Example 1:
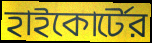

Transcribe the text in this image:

হাইকোর্টের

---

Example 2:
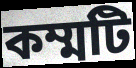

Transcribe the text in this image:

কম্মটি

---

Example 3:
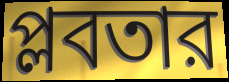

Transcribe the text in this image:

প্লবতার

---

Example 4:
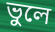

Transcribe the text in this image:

ভুলে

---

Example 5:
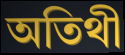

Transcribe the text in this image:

অতিথী